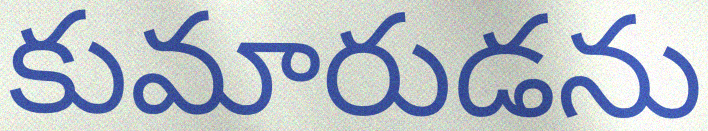
కుమారుడను